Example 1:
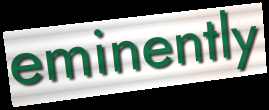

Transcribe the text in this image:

eminently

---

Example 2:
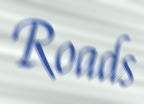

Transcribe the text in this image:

Roads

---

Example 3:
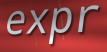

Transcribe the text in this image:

expr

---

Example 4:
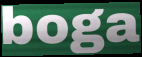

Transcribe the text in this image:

boga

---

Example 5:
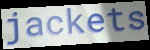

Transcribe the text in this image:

jackets